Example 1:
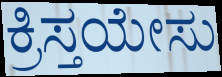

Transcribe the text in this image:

ಕ್ರಿಸ್ತಯೇಸು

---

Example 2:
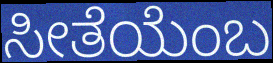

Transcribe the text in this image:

ಸೀತೆಯೆಂಬ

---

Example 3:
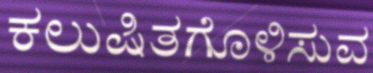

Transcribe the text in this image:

ಕಲುಷಿತಗೊಳಿಸುವ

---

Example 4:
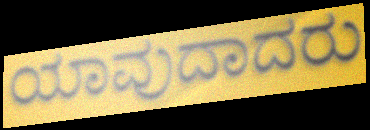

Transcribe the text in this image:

ಯಾವುದಾದರು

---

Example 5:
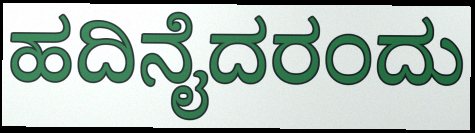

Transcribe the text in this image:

ಹದಿನೈದರಂದು